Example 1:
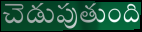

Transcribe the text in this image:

చెడుపుతుంది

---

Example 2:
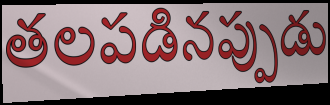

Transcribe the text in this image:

తలపడినప్పుడు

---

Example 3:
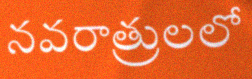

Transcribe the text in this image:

నవరాత్రులలో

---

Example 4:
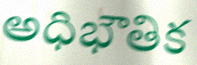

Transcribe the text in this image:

అధిభౌతిక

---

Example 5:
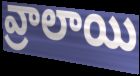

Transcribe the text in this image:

వ్రాలాయి